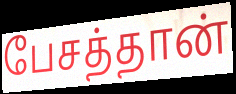
பேசத்தான்